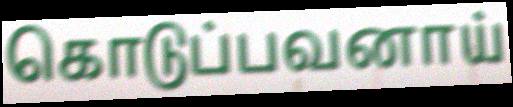
கொடுப்பவனாய்